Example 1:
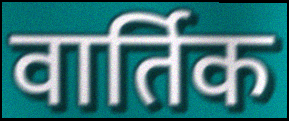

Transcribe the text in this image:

वार्तिक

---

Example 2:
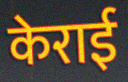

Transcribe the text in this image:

केराई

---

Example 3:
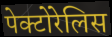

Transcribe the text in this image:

पेक्टोरेलिस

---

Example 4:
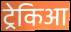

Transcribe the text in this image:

ट्रेकिआ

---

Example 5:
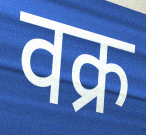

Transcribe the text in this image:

वक्र